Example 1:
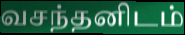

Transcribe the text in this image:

வசந்தனிடம்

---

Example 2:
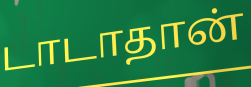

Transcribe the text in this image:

டாடாதான்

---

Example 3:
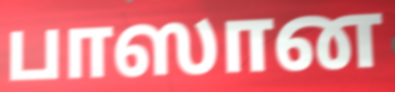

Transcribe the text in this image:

பாஸான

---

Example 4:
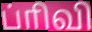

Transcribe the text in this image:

ப்ரிவி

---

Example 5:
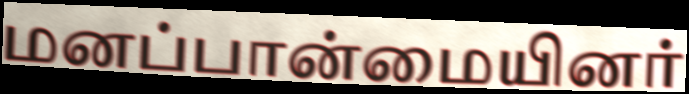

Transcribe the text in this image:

மனப்பான்மையினர்